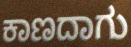
ಕಾಣದಾಗು